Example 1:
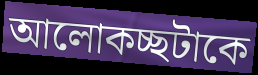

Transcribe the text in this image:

আলোকচ্ছটাকে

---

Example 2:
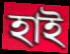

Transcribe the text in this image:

হাই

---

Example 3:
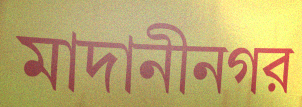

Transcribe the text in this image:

মাদানীনগর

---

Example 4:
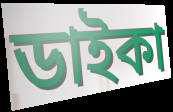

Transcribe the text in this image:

ডাইকা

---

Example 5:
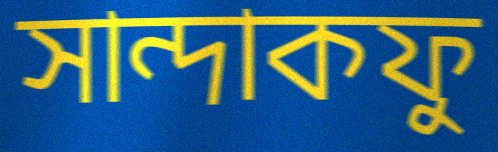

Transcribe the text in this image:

সান্দাকফু